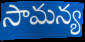
సామన్య